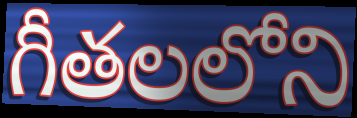
గీతలలోని